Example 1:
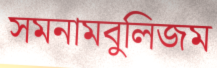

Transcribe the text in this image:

সমনামবুলিজম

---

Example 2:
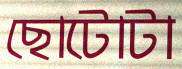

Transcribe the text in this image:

ছোটোটা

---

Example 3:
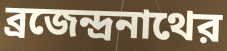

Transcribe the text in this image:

ব্রজেন্দ্রনাথের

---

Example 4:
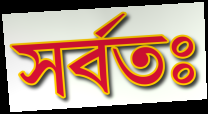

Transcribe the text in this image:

সর্বতঃ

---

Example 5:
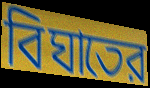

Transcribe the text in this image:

বিঘাতের